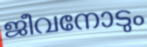
ജീവനോടും